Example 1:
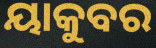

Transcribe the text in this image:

ୟାକୁବର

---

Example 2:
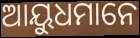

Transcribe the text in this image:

ଆୟୁଧମାନେ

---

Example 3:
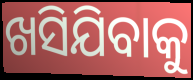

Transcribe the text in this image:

ଖସିଯିବାକୁ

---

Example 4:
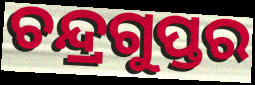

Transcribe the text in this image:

ଚନ୍ଦ୍ରଗୁପ୍ତର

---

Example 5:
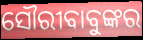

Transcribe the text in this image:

ସୌରୀବାବୁଙ୍କର